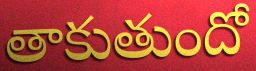
తాకుతుందో